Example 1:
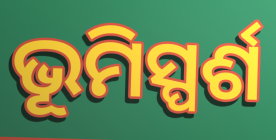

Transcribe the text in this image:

ଭୂମିସ୍ପର୍ଶ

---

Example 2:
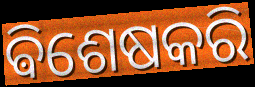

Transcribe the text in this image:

ଵିଶେଷକରି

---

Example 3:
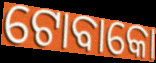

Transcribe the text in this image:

ଟୋବାକୋ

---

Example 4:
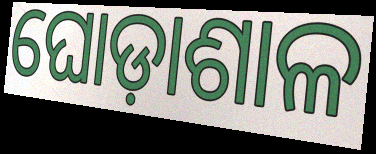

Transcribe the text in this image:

ଘୋଡ଼ାଶାଳ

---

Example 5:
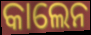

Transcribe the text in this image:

କାଲେନ